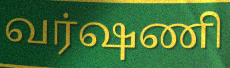
வர்ஷணி